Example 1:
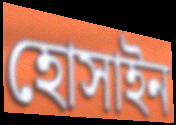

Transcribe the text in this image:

হোসাইন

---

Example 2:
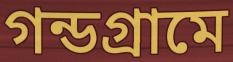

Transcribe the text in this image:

গন্ডগ্রামে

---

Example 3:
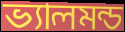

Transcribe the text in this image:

ভ্যালমন্ড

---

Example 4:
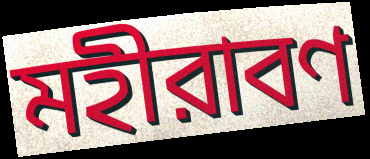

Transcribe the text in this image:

মহীরাবণ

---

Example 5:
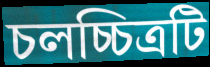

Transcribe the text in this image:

চলচ্চিত্রটি